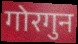
गोरगुन